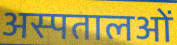
अस्पतालओं